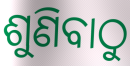
ଶୁଣିବାଠୁ